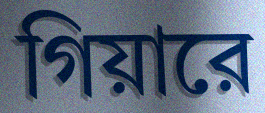
গিয়ারে